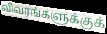
விவரங்களுக்குக்